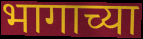
भागाच्या